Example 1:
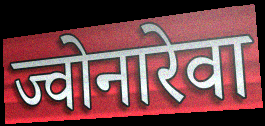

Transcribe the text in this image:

ज्वोनारेवा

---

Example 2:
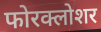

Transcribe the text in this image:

फोरक्लोशर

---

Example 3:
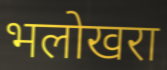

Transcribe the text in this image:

भलोखरा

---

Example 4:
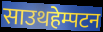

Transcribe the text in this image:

साउथहेम्पटन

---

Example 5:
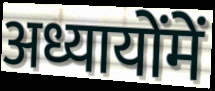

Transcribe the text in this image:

अध्यायोंमें